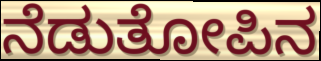
ನೆಡುತೋಪಿನ